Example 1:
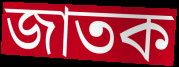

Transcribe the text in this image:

জাতক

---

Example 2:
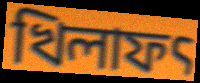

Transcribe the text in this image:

খিলাফৎ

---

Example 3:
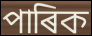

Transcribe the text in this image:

পাৰিক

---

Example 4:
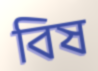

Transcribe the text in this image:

বিষ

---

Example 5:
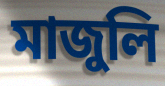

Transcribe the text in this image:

মাজুলি